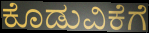
ಕೊಡುವಿಕೆಗೆ